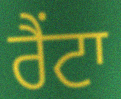
ਰੈਂਟਾ